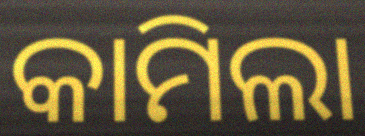
କାମିଲା